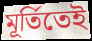
মূর্তিতেই